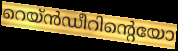
റെയ്ൻഡീറിന്റെയോ